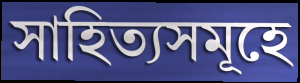
সাহিত্যসমূহে